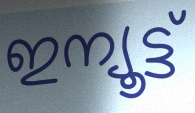
ഇന്യൂട്ട്